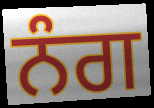
ਨੰਗ